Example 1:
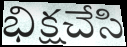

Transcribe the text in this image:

భిక్షచేసి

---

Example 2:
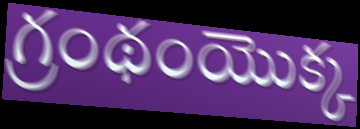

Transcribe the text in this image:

గ్రంథంయొక్క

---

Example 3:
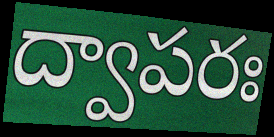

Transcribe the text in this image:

ద్వాపరః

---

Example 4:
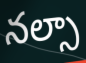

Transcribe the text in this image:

నల్సా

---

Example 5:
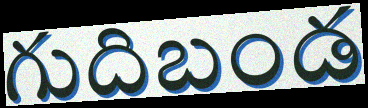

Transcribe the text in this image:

గుదిబండ